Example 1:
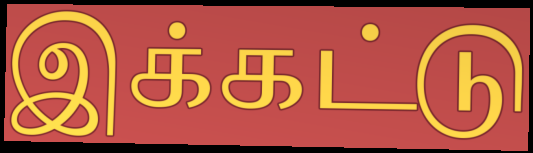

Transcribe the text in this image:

இக்கட்டு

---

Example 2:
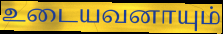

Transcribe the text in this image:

உடையவனாயும்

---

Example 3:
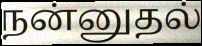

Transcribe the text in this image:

நன்னுதல்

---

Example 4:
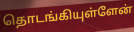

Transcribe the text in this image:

தொடங்கியுள்ளேன்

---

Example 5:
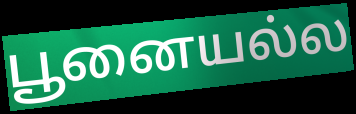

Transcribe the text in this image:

பூனையல்ல